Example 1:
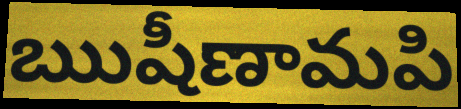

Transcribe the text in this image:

ఋషీణామపి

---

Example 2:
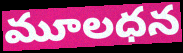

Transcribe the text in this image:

మూలధన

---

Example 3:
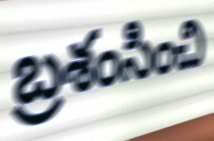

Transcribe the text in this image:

బ్రశంసించి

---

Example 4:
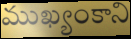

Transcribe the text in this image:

ముఖ్యంకాని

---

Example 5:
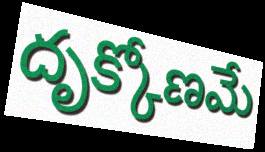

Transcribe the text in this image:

దృక్కోణమే